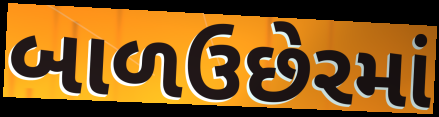
બાળઉછેરમાં